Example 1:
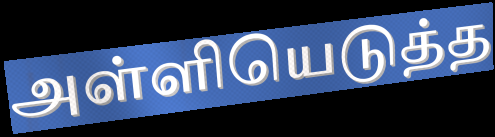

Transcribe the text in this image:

அள்ளியெடுத்த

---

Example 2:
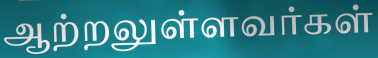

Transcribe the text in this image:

ஆற்றலுள்ளவர்கள்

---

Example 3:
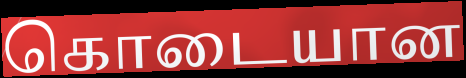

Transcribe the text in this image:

கொடையான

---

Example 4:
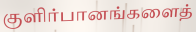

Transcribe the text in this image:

குளிர்பானங்களைத்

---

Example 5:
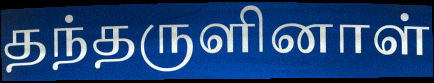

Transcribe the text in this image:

தந்தருளினாள்